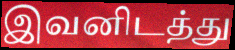
இவனிடத்து